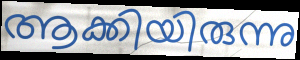
ആക്കിയിരുന്നു